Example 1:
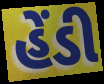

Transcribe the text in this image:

હેંડી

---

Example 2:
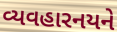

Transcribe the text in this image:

વ્યવહારનયને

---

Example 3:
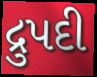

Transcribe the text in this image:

દ્રુપદી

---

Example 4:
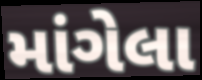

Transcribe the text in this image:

માંગેલા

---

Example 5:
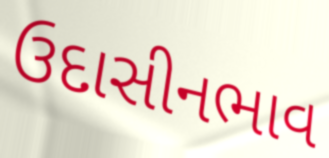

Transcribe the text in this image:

ઉદાસીનભાવ